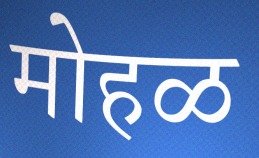
मोहळ